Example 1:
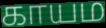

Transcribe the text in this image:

காயம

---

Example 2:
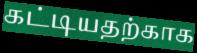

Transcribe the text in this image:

கட்டியதற்காக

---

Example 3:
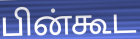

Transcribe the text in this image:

பின்கூட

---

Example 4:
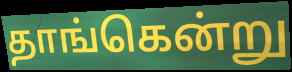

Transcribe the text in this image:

தாங்கென்று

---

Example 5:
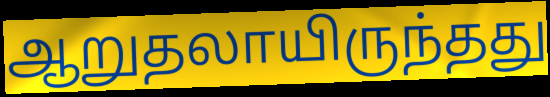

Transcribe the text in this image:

ஆறுதலாயிருந்தது